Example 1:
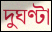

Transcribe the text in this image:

দুঘণ্টা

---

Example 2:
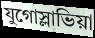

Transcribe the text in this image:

যুগোস্লাভিয়া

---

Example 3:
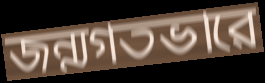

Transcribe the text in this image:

জন্মগতভাৱে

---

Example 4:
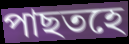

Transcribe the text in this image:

পাছতহে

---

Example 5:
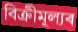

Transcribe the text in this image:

বিক্ৰীমূল্যৰ